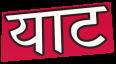
याट